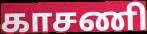
காசணி